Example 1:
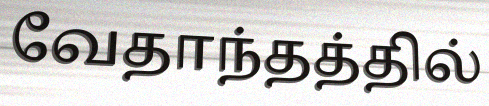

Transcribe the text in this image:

வேதாந்தத்தில்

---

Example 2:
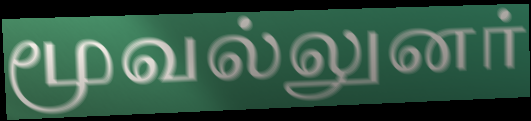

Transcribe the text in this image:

மூவல்லுனர்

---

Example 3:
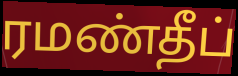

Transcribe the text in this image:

ரமண்தீப்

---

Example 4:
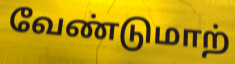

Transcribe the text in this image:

வேண்டுமாற்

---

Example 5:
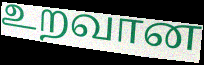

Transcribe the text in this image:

உறவான